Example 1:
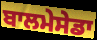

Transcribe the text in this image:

ਬਾਲਮੇਸੇਡਾ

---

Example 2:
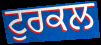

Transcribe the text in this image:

ਟੁਰਕਲ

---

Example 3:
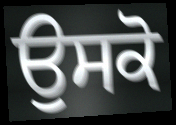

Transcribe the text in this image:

ਉਸਕੋ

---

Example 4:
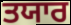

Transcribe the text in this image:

ਤਯਾਰ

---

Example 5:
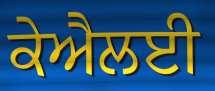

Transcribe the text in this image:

ਕੇਐਲਈ